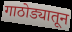
गाठोड्यातून